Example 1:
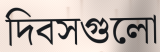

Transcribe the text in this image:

দিবসগুলো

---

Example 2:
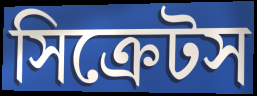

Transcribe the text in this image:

সিক্রেটস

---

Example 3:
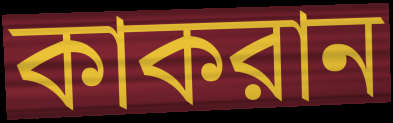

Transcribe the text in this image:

কাকরান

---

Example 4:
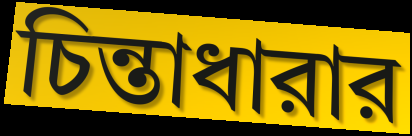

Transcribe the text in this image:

চিন্তাধারার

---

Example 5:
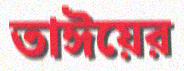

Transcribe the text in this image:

তাঈয়ের